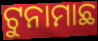
ଟୁନାମାଛ